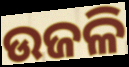
ଉଜଳି